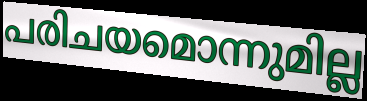
പരിചയമൊന്നുമില്ല